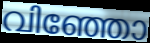
വിഞ്ഞോ